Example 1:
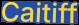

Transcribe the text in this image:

Caitiff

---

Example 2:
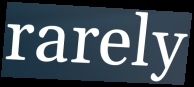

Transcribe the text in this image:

rarely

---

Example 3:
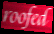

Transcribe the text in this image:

roofed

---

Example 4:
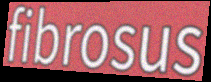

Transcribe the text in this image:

fibrosus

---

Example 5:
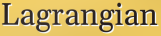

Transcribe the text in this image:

Lagrangian